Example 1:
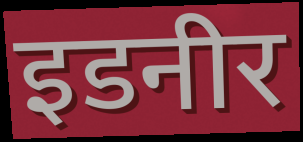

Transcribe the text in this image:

इडनीर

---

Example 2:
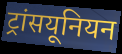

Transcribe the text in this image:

ट्रांसयूनियन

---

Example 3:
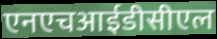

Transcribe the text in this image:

एनएचआईडीसीएल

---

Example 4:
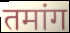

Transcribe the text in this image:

तमांग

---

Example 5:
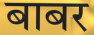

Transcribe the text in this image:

बाबर